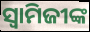
ସ୍ବାମିଜୀଙ୍କ